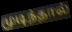
முடிந்தால்